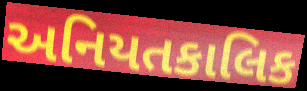
અનિયતકાલિક